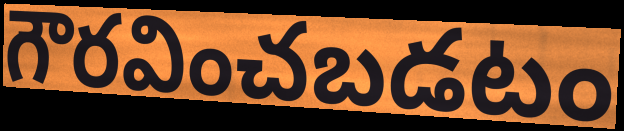
గౌరవించబడటం